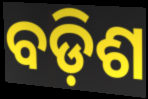
ବଡ଼ିଶ